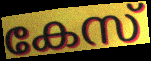
കേസ്